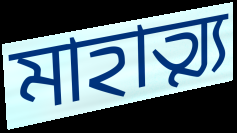
মাহাত্ম্য